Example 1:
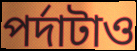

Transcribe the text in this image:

পর্দাটাও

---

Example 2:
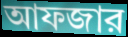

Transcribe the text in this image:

আফজার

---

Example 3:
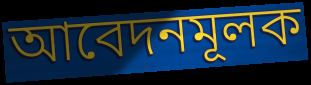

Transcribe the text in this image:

আবেদনমূলক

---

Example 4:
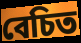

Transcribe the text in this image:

বেচিত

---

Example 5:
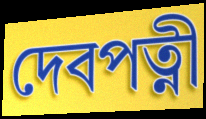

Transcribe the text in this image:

দেবপত্নী